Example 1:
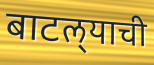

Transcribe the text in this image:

बाटल्याची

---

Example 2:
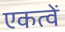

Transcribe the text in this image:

एकत्वें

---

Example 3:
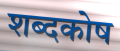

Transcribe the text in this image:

शब्दकोष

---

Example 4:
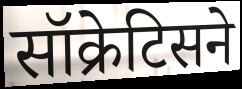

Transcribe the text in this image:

सॉक्रेटिसने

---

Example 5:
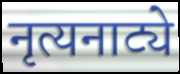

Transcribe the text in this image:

नृत्यनाट्ये